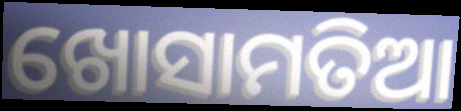
ଖୋସାମତିଆ